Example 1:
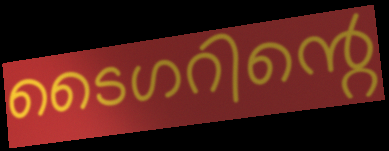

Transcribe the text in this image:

ടൈഗറിന്റെ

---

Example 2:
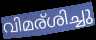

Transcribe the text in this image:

വിമര്ശിച്ചു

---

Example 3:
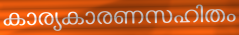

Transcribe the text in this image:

കാര്യകാരണസഹിതം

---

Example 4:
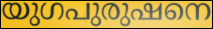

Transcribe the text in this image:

യുഗപുരുഷനെ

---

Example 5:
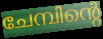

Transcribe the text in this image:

ചേമ്പിന്റെ